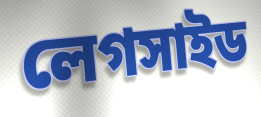
লেগসাইড